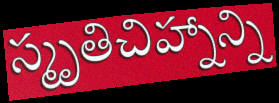
స్మృతిచిహ్నాన్ని